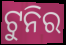
ଟୁନିର